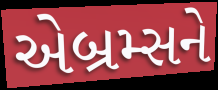
એબ્રમ્સને